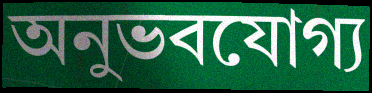
অনুভবযোগ্য